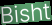
Bisht